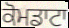
ਕੋਮਡਾਟਾ